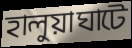
হালুয়াঘাটে